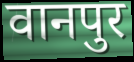
वानपुर